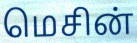
மெசின்